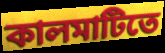
কালমাটিতে